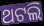
ଥଟଲି